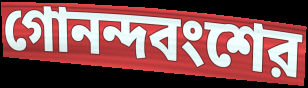
গোনন্দবংশের